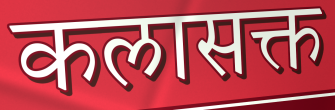
कलासक्त